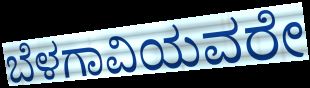
ಬೆಳಗಾವಿಯವರೇ